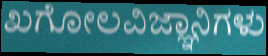
ಖಗೋಲವಿಜ್ಞಾನಿಗಳು